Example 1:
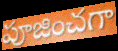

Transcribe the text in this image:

పూజించగా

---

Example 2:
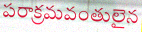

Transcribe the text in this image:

పరాక్రమవంతులైన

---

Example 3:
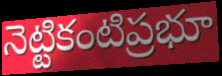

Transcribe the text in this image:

నెట్టికంటిప్రభూ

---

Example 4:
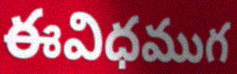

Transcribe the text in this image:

ఈవిధముగ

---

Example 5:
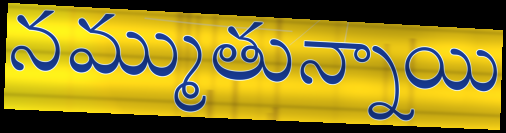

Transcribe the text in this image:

నమ్ముతున్నాయి